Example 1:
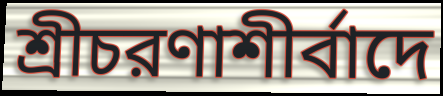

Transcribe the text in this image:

শ্রীচরণাশীর্বাদে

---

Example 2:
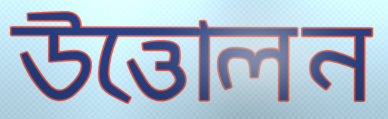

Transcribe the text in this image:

উত্তোলন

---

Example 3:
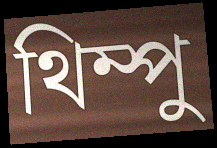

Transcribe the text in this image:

থিম্পু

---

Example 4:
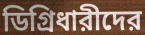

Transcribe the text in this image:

ডিগ্রিধারীদের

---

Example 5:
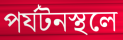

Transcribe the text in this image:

পর্যটনস্থলে